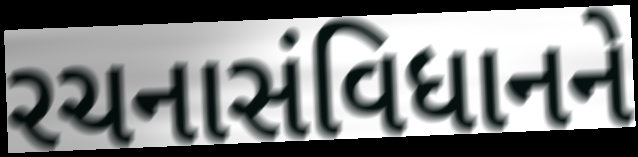
રચનાસંવિધાનને